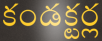
కండక్టర్ల